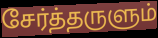
சேர்த்தருளும்